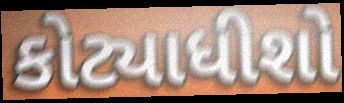
કોટ્યાધીશો